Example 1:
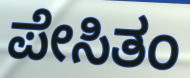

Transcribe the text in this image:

ಪೇಸಿತಂ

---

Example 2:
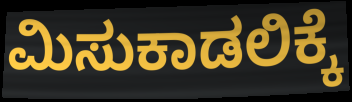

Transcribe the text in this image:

ಮಿಸುಕಾಡಲಿಕ್ಕೆ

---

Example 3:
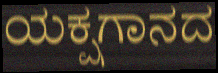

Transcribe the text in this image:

ಯಕ್ಷಗಾನದ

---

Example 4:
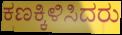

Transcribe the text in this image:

ಕಣಕ್ಕಿಳಿಸಿದರು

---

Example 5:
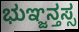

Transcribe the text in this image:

ಭುಞ್ಜನ್ತಸ್ಸ